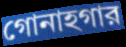
গোনাহগার